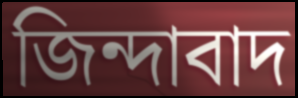
জিন্দাবাদ